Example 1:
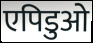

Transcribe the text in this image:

एपिडुओ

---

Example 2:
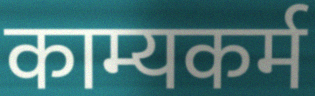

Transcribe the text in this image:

काम्यकर्म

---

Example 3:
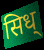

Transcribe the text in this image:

सिध्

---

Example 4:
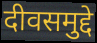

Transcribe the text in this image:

दीवसमुद्दे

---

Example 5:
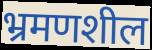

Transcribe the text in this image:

भ्रमणशील